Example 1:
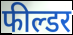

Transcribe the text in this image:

फील्डर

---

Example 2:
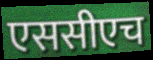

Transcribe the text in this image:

एससीएच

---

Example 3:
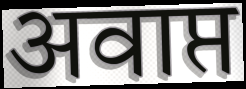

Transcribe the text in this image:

अवाप्त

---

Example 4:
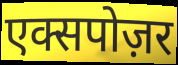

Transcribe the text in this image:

एक्सपोज़र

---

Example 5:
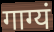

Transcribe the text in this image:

गाग्यं